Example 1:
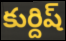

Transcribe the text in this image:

కుర్దిష్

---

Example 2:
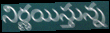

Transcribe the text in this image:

నిర్ణయిస్తున్న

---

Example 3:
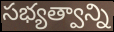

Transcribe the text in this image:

సభ్యత్వాన్ని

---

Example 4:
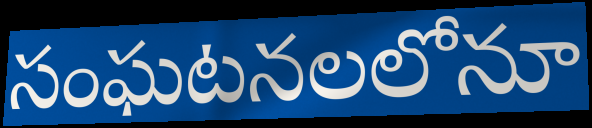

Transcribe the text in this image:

సంఘటనలలోనూ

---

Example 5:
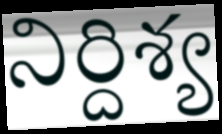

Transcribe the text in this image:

నిర్దిశ్య